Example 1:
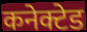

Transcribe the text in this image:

कनेक्टेड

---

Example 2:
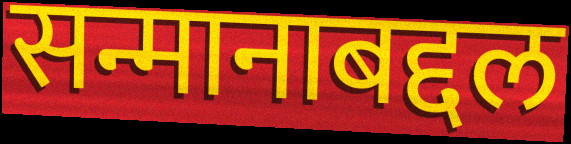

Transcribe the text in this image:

सन्मानाबद्दल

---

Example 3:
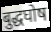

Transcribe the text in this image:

बुद्धघोष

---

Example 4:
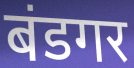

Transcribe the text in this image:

बंडगर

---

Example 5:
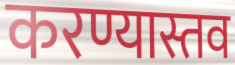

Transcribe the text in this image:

करण्यास्तव